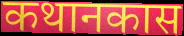
कथानकास